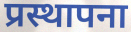
प्रस्थापना